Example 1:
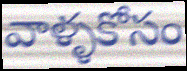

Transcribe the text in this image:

వాళ్ళకోసం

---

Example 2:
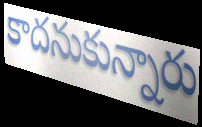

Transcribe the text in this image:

కాదనుకున్నారు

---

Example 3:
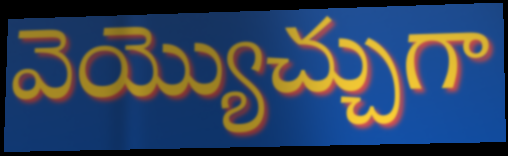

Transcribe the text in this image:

వెయ్యొచ్చుగా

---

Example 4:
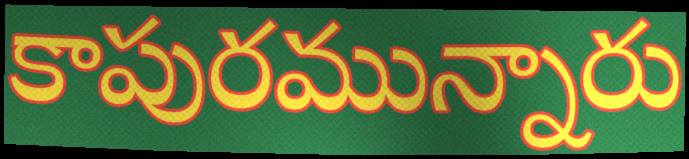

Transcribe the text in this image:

కాపురమున్నారు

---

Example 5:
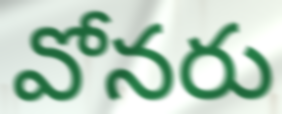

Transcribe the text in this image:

వోనరు